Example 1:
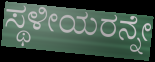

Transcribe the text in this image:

ಸ್ಥಳೀಯರನ್ನೇ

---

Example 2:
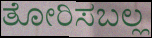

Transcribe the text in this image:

ತೋರಿಸಬಲ್ಲ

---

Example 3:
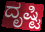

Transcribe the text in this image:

ದೃಷ್ಟಿ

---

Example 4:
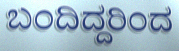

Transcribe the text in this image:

ಬಂದಿದ್ದರಿಂದ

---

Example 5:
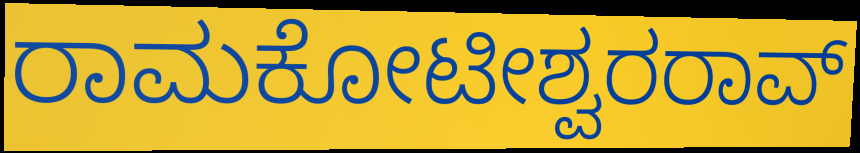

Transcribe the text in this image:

ರಾಮಕೋಟೀಶ್ವರರಾವ್